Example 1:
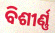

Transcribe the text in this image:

ବିଶୀର୍ଣ୍ଣ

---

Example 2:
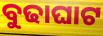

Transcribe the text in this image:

ବୁଢାଘାଟ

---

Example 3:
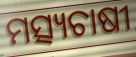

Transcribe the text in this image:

ମତ୍ସ୍ୟଚାଷୀ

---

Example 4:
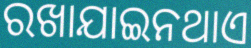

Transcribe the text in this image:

ରଖାଯାଇନଥାଏ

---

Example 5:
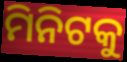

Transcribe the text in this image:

ମିନିଟକୁ